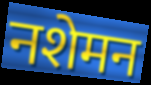
नशेमन